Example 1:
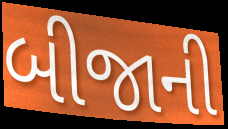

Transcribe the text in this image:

બીજાની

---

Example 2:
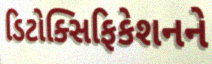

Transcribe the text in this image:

ડિટોક્સિફિકેશનને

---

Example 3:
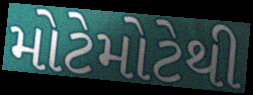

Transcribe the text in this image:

મોટેમોટેથી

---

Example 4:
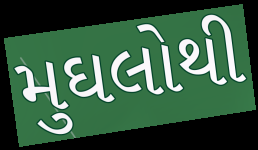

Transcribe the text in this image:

મુઘલોથી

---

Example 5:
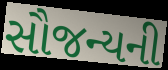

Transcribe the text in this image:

સૌજન્યની